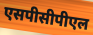
एसपीसीपीएल